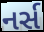
નર્સ